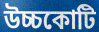
উচ্চকোটি